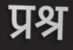
प्रश्र